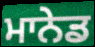
ਮਾਨੇਡ